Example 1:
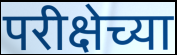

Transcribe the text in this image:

परीक्षेच्या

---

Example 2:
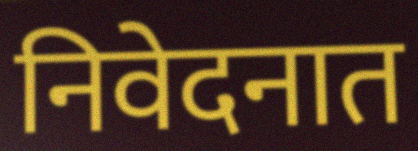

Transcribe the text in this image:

निवेदनात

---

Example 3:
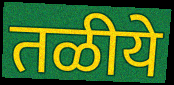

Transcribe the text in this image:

तळीये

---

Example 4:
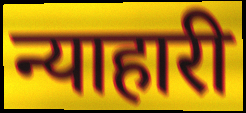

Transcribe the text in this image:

न्याहारी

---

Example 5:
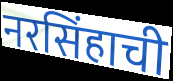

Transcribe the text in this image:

नरसिंहाची